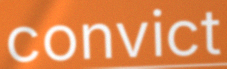
convict